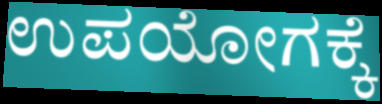
ಉಪಯೋಗಕ್ಕೆ